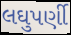
લઘુપર્ણી